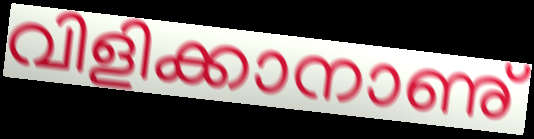
വിളിക്കാനാണു്